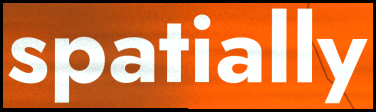
spatially